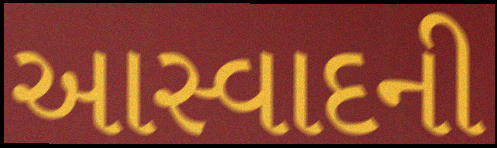
આસ્વાદની